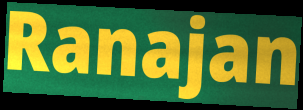
Ranajan